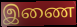
இணை